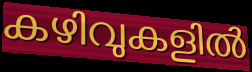
കഴിവുകളിൽ